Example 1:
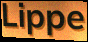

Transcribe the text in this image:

Lippe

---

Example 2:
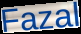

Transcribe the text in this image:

Fazal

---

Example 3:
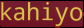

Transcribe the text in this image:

kahiyo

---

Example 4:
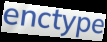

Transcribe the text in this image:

enctype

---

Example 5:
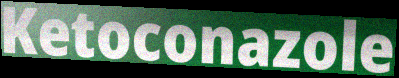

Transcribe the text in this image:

Ketoconazole